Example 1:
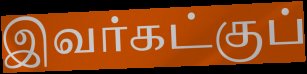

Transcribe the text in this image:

இவர்கட்குப்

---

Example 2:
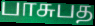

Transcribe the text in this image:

பாசுபத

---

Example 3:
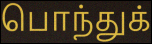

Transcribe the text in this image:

பொந்துக்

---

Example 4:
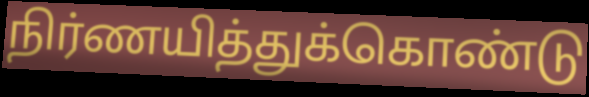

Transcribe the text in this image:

நிர்ணயித்துக்கொண்டு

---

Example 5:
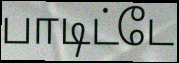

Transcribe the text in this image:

பாடிட்டே